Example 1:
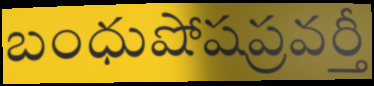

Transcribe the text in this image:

బంధుషోషప్రవర్తీ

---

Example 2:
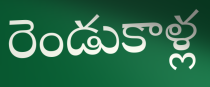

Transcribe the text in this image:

రెండుకాళ్ల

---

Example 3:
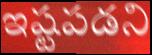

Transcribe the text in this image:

ఇష్టపడని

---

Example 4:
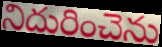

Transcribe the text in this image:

నిదురించెను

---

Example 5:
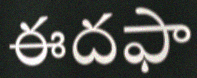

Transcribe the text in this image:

ఈదఫా